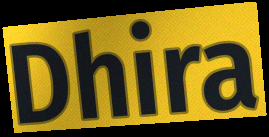
Dhira